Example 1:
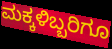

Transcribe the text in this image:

ಮಕ್ಕಳಿಬ್ಬರಿಗೂ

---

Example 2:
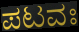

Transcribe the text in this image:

ಪಟವಃ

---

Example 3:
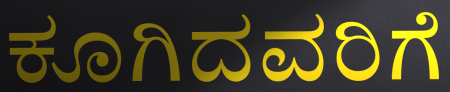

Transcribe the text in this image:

ಕೂಗಿದವರಿಗೆ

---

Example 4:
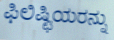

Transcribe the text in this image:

ಫಿಲಿಷ್ಟಿಯರನ್ನು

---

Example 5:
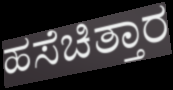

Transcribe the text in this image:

ಹಸೆಚಿತ್ತಾರ